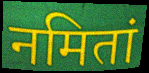
नमितां